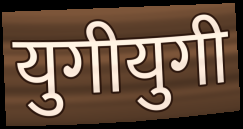
युगीयुगी